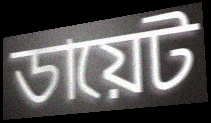
ডায়েট